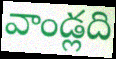
వాండ్లది